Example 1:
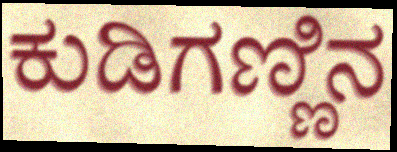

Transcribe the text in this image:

ಕುಡಿಗಣ್ಣಿನ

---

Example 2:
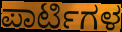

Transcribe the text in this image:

ಪಾರ್ಟಿಗಳ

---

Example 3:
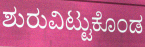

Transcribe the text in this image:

ಶುರುವಿಟ್ಟುಕೊಂಡ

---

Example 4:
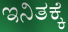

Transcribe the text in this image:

ಇನಿತಕ್ಕೆ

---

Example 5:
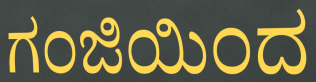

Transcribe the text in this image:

ಗಂಜಿಯಿಂದ